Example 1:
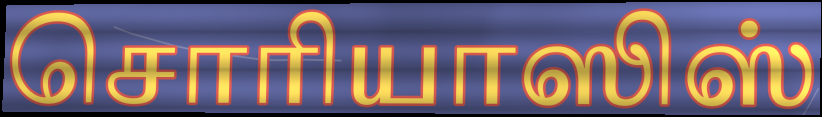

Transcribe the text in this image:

சொரியாஸிஸ்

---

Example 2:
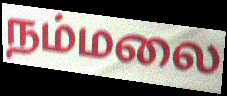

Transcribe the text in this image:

நம்மலை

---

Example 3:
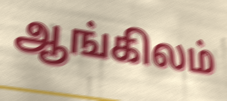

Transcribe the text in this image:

ஆங்கிலம்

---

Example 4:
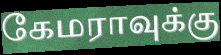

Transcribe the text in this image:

கேமராவுக்கு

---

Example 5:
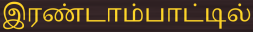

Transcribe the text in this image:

இரண்டாம்பாட்டில்